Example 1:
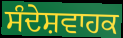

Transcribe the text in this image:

ਸੰਦੇਸ਼ਵਾਹਕ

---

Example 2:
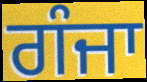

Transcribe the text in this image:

ਗੰਜਾ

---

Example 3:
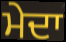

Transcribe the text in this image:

ਮੇਦਾ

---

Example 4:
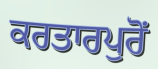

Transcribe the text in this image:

ਕਰਤਾਰਪੁਰੋਂ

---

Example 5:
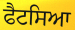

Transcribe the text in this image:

ਫੈਟਸਿਆ